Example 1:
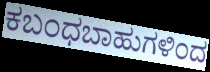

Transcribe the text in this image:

ಕಬಂಧಬಾಹುಗಳಿಂದ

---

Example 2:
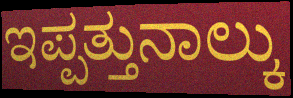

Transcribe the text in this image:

ಇಪ್ಪತ್ತುನಾಲ್ಕು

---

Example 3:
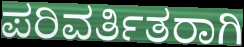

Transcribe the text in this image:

ಪರಿವರ್ತಿತರಾಗಿ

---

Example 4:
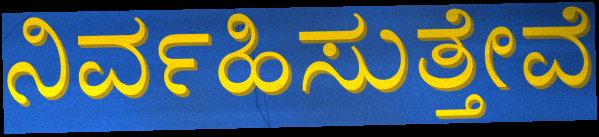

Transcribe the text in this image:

ನಿರ್ವಹಿಸುತ್ತೇವೆ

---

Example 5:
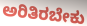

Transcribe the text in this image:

ಅರಿತಿರಬೇಕು